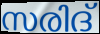
സരിദ്